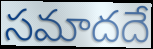
సమాదదే